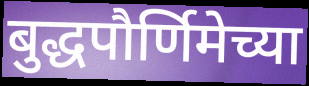
बुद्धपौर्णिमेच्या